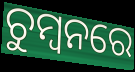
ଚୁମ୍ବନରେ